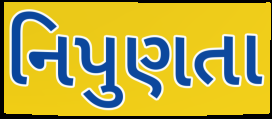
નિપુણતા